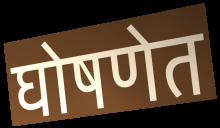
घोषणेत